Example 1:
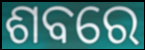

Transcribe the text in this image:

ଶବରେ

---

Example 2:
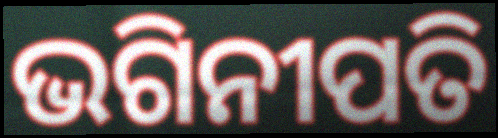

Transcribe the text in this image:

ଭଗିନୀପତି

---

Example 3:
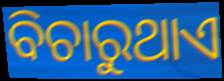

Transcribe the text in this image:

ବିଚାରୁଥାଏ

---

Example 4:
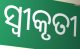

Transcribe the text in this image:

ସ୍ୱୀକୃତୀ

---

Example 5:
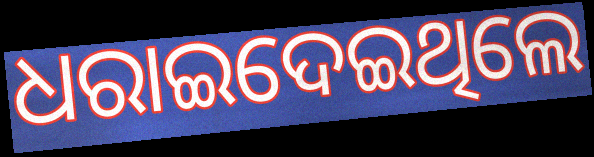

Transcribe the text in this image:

ଧରାଇଦେଇଥିଲେ